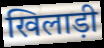
खिलाड़ी